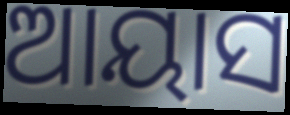
ଆୟାସ